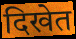
दिखेत